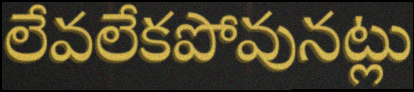
లేవలేకపోవునట్లు